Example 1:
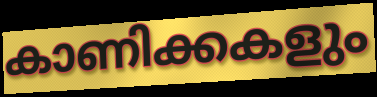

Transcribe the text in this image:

കാണിക്കകളും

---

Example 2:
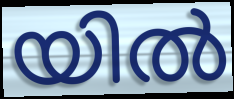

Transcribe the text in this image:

യിൽ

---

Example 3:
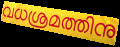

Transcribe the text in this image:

വധശ്രമത്തിനു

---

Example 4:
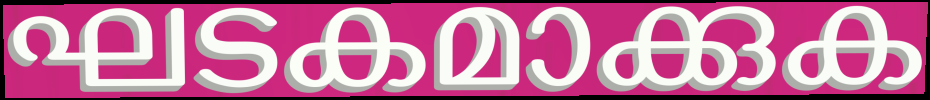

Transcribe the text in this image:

ഘടകമാക്കുക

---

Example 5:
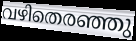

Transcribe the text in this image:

വഴിതെരഞ്ഞു